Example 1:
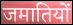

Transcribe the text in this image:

जमातियों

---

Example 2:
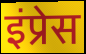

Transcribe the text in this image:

इंप्रेस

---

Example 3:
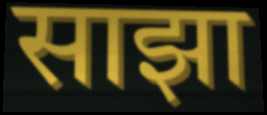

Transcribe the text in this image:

साझा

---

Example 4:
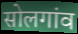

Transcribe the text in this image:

सोलगांव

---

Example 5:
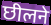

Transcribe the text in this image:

छीलने